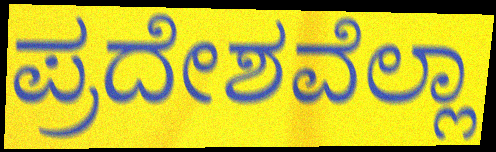
ಪ್ರದೇಶವೆಲ್ಲಾ